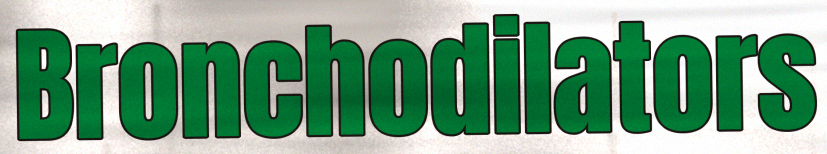
Bronchodilators